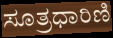
ಸೂತ್ರಧಾರಿಣಿ